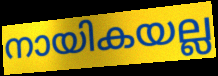
നായികയല്ല